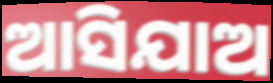
ଆସିଯାଅ